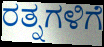
ರತ್ನಗಳಿಗೆ